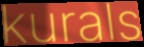
kurals